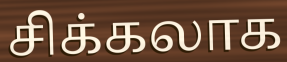
சிக்கலாக